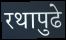
रथापुढे